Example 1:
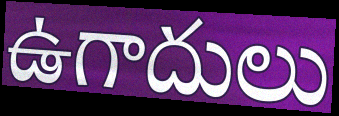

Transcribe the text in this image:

ఉగాదులు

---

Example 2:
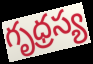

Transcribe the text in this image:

గృధ్రస్య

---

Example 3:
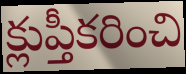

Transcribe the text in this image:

క్లుప్తీకరించి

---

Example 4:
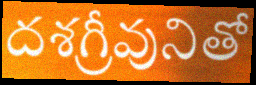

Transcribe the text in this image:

దశగ్రీవునితో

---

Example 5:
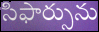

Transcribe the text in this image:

సిఫార్సును